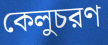
কেলুচরণ